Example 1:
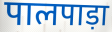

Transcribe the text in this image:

पालपाड़ा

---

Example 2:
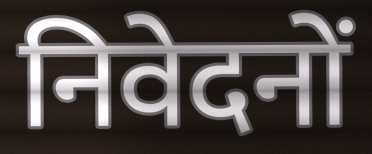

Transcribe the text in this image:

निवेदनों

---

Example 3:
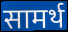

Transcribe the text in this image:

सामर्थ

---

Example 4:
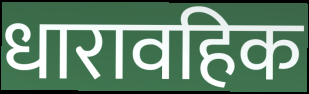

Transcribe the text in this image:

धारावहिक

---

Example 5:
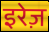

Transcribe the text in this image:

इरेज़